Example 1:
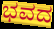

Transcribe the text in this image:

ಭವದ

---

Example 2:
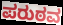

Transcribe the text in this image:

ಪರುಠವ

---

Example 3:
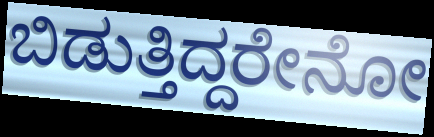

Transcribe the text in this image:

ಬಿಡುತ್ತಿದ್ದರೇನೋ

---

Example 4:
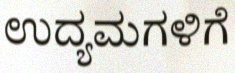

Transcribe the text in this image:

ಉದ್ಯಮಗಳಿಗೆ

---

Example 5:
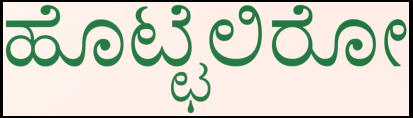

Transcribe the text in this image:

ಹೊಟ್ಟೆಲಿರೋ